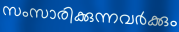
സംസാരിക്കുന്നവർക്കും